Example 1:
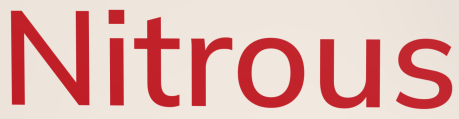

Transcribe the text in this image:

Nitrous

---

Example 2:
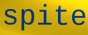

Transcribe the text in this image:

spite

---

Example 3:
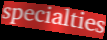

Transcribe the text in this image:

specialties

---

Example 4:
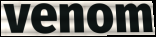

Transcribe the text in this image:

venom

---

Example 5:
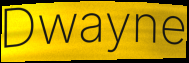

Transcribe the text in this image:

Dwayne